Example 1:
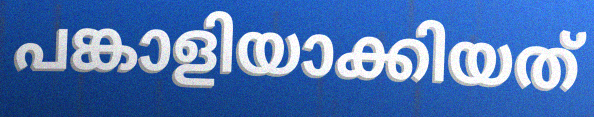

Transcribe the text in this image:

പങ്കാളിയാക്കിയത്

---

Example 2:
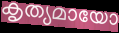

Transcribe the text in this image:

കൃത്യമായോ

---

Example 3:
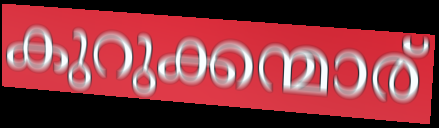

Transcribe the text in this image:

കുറുക്കന്മാര്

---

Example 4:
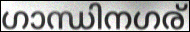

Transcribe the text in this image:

ഗാന്ധിനഗര്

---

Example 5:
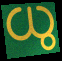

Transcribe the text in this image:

ധു